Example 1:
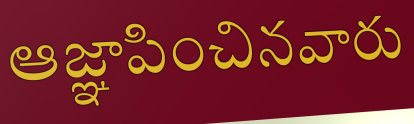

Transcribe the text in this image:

ఆజ్ఞాపించినవారు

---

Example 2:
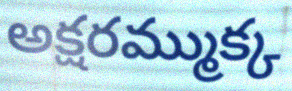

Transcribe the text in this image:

అక్షరమ్ముక్క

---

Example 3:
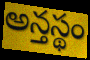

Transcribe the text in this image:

అన్తస్థం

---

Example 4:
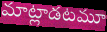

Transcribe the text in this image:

మాట్లాడటమూ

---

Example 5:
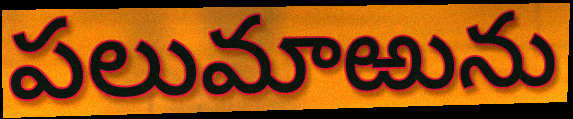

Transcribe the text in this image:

పలుమాఱును